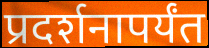
प्रदर्शनापर्यंत